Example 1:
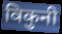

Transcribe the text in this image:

विकुनी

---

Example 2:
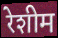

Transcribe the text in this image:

रेशीम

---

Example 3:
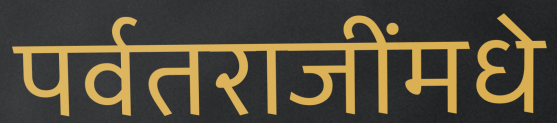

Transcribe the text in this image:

पर्वतराजींमधे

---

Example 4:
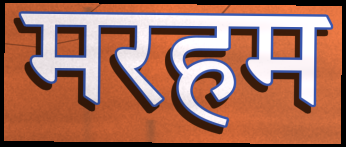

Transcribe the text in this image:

मरहम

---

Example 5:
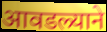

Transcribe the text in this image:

आवडल्याने